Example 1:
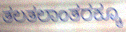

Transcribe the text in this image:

ತಲತಲಾಂತರಕ್ಕೂ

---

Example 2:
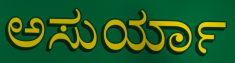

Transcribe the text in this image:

ಅಸುರ್ಯಾ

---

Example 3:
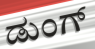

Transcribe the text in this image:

ಡುಂಗ್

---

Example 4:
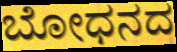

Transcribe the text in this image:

ಬೋಧನದ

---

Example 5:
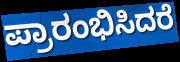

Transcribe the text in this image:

ಪ್ರಾರಂಭಿಸಿದರೆ